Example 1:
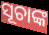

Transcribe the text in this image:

ସୂଚାଙ୍କ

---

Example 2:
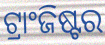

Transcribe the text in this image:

ଟ୍ରାଂଜିଷ୍ଟର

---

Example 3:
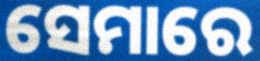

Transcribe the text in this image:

ସେମାରେ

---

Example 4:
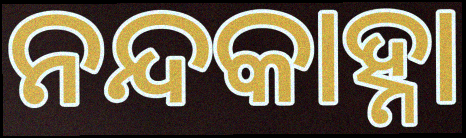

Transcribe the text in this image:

ନନ୍ଦକାହ୍ନା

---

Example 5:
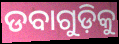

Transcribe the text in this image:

ଡବାଗୁଡ଼ିକୁ